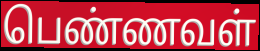
பெண்ணவள்